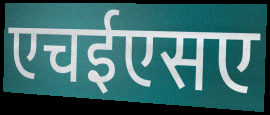
एचईएसए